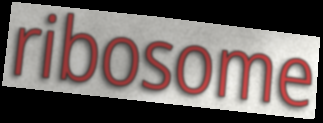
ribosome